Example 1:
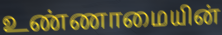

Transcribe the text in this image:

உண்ணாமையின்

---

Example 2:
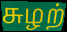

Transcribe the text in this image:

சுழற்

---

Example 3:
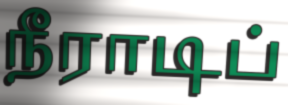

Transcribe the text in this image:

நீராடிப்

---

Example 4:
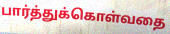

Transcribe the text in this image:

பார்த்துக்கொள்வதை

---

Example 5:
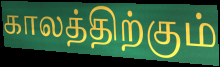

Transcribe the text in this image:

காலத்திற்கும்